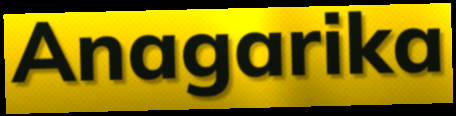
Anagarika